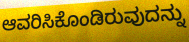
ಆವರಿಸಿಕೊಂಡಿರುವುದನ್ನು